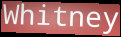
Whitney